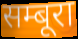
सम्बूरा